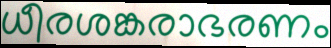
ധീരശങ്കരാഭരണം